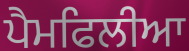
ਪੈਮਫਿਲੀਆ